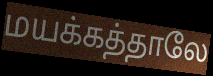
மயக்கத்தாலே